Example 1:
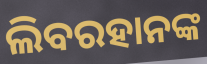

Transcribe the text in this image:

ଲିବରହାନଙ୍କ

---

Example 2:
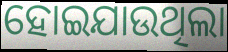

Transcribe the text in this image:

ହୋଇଯାଉଥିଲା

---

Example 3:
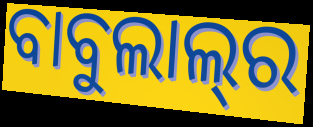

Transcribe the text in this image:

ବାବୁଲାଲ୍‍ର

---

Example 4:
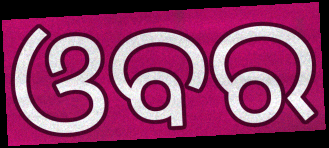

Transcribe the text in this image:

ଓବର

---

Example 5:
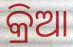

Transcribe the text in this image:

କ୍ରିଆ